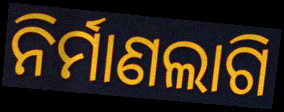
ନିର୍ମାଣଲାଗି